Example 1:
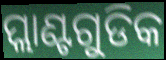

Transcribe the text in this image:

ପ୍ଲାଣ୍ଟଗୁଡିକ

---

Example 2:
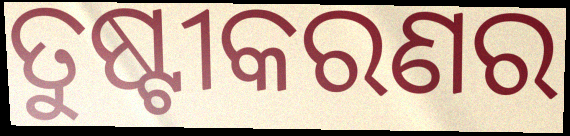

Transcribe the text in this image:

ତୁଷ୍ଟୀକରଣର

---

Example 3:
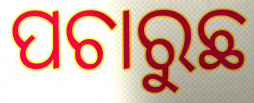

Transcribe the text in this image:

ପଚାରୁଛ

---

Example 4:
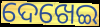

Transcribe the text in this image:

ଦେଖେଇ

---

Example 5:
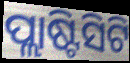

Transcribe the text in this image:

ପ୍ଲାଷ୍ଟିସିଟି